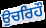
ਉਚਰਿਹੌ